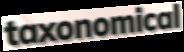
taxonomical